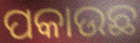
ପକାଉଛ